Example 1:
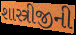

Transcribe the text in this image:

શાસ્ત્રીજીની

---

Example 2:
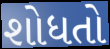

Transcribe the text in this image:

શોધતો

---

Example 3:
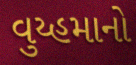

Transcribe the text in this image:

વુય્હમાનો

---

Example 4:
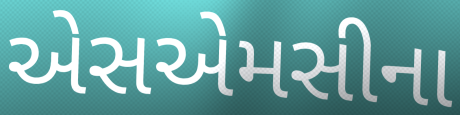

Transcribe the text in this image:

એસએમસીના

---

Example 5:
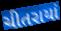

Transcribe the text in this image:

ચીતરાયાં